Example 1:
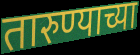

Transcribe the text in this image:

तारुण्याच्या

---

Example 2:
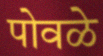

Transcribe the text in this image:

पोवळे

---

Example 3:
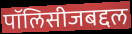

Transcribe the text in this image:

पॉलिसीजबद्दल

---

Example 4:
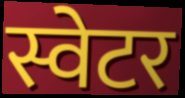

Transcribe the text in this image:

स्वेटर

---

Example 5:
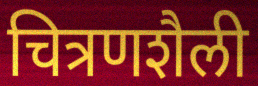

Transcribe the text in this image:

चित्रणशैली